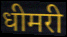
धीमरी